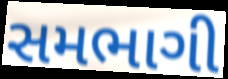
સમભાગી